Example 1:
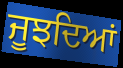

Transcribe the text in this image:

ਜੂਝਦਿਆਂ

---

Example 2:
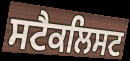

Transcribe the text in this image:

ਸਟੈਕਲਿਸਟ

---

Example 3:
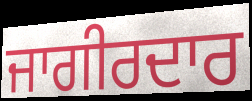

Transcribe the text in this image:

ਜਾਗੀਰਦਾਰ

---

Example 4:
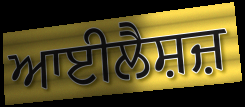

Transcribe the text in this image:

ਆਈਲੈਸ਼ਜ਼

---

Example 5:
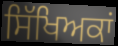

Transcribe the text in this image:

ਸਿੱਖਿਅਕਾਂ